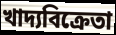
খাদ্যবিক্রেতা